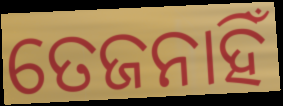
ତେଜନାହିଁ